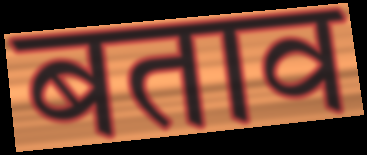
बताव